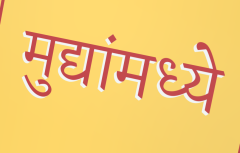
मुद्यांमध्ये